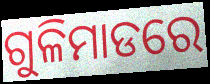
ଗୁଳିମାଡରେ